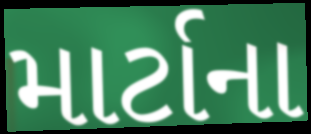
માર્ટાના